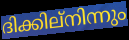
ദിക്കില്നിന്നും